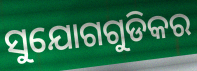
ସୁଯୋଗଗୁଡିକର